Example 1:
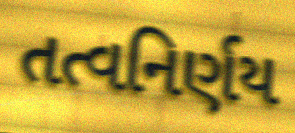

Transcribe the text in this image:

તત્વનિર્ણય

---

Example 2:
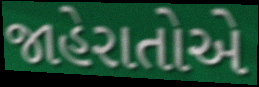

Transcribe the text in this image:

જાહેરાતોએ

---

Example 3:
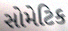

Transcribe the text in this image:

સોમેટિક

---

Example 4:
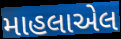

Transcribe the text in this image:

માહલાએલ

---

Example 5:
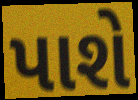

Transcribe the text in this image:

પાશે